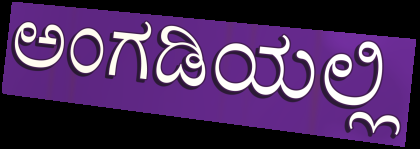
ಅಂಗಡಿಯಲ್ಲಿ